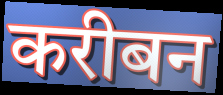
करीबन